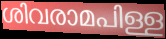
ശിവരാമപിള്ള